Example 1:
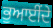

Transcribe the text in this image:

ਭੁਆਈਂਦੇ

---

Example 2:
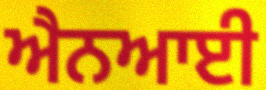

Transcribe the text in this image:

ਐਨਆਈ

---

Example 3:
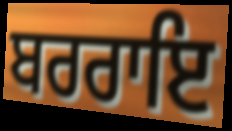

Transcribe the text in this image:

ਬਰਰਾਇ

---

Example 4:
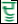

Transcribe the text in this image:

ਦੂ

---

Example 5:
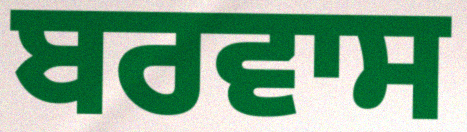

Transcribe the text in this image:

ਬਰਵਾਸ